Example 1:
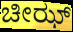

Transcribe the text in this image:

ಚೀಝ್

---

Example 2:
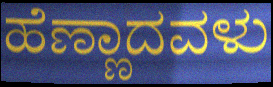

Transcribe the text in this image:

ಹೆಣ್ಣಾದವಳು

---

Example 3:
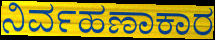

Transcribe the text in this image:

ನಿರ್ವಹಣಾಕಾರ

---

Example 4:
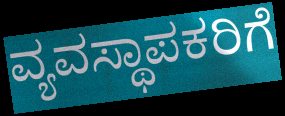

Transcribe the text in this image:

ವ್ಯವಸ್ಥಾಪಕರಿಗೆ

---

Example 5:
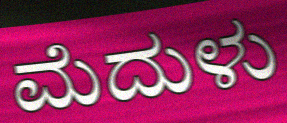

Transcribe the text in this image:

ಮೆದುಳು